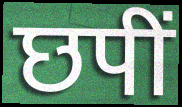
छपीं